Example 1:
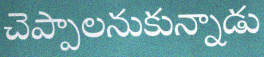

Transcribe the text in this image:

చెప్పాలనుకున్నాడు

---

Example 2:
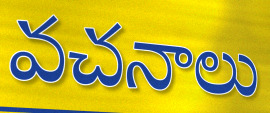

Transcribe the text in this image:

వచనాలు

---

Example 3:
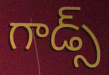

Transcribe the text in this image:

గాడ్స్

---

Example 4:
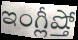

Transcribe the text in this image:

ఇంగ్లీష్తో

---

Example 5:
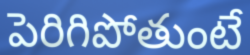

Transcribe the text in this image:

పెరిగిపోతుంటే